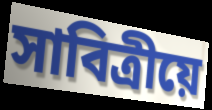
সাবিত্ৰীয়ে